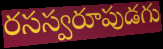
రసస్వరూపుడగు